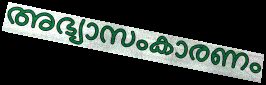
അഭ്യാസംകാരണം